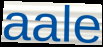
aale